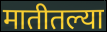
मातीतल्या